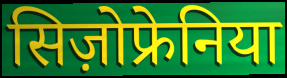
सिज़ोफ्रेनिया